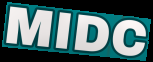
MIDC